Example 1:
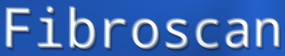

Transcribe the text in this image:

Fibroscan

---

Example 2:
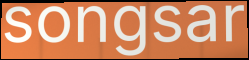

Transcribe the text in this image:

songsar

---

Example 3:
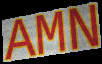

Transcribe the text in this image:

AMN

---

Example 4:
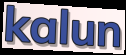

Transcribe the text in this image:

kalun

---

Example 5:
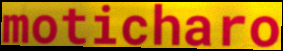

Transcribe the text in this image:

moticharo